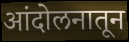
आंदोलनातून